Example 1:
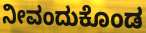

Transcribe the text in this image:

ನೀವಂದುಕೊಂಡ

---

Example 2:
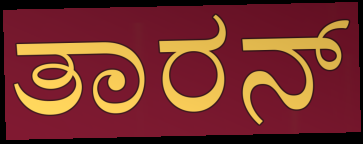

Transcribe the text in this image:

ತಾರನ್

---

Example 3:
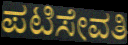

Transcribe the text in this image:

ಪಟಿಸೇವತಿ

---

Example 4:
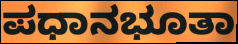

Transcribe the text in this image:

ಪಧಾನಭೂತಾ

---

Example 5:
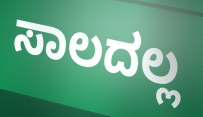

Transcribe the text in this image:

ಸಾಲದಲ್ಲ